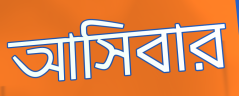
আসিবার